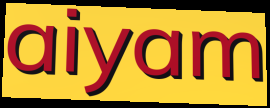
aiyam